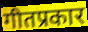
गीतप्रकार